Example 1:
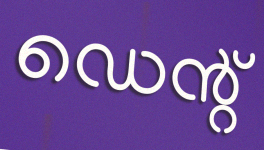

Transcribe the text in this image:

ഡെന്റ്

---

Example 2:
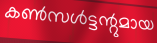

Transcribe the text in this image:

കൺസൾട്ടന്റുമായ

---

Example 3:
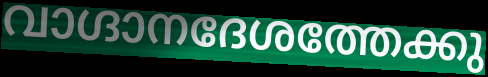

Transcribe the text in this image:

വാഗ്ദാനദേശത്തേക്കു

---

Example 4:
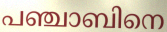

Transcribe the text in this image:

പഞ്ചാബിനെ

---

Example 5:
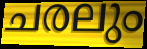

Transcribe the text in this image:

ചരലും